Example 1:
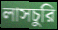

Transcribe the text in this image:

লাসচুরি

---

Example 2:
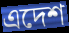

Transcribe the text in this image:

এদেশ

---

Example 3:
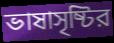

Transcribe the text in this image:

ভাষাসৃষ্টির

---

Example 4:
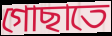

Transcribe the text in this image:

গোছাতে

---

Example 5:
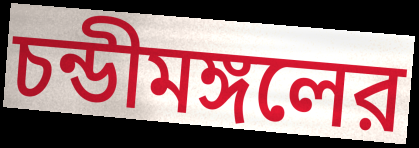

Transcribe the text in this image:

চন্ডীমঙ্গলের